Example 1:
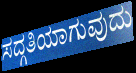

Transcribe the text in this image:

ಸದ್ಗತಿಯಾಗುವುದು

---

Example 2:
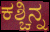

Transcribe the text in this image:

ಕಶ್ಚಿನ್ನ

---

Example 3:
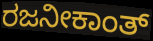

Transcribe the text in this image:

ರಜನೀಕಾಂತ್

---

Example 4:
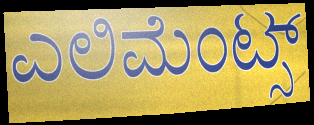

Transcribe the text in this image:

ಎಲಿಮೆಂಟ್ಸ್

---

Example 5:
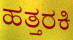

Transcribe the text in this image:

ಹತ್ತರಕಿ